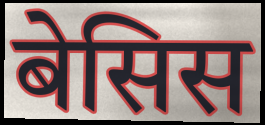
बेसिस